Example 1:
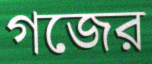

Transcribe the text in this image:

গজের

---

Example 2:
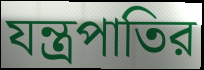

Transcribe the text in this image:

যন্ত্রপাতির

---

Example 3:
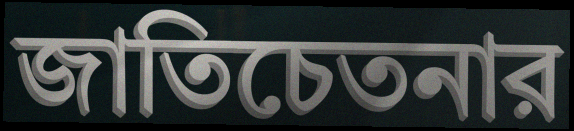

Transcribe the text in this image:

জাতিচেতনার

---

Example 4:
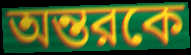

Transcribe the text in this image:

অন্তরকে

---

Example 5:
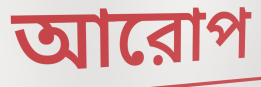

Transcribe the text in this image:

আরোপ